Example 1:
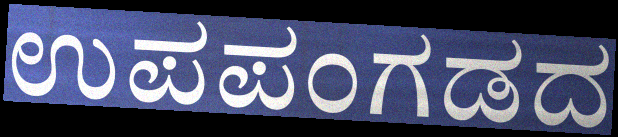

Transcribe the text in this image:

ಉಪಪಂಗಡದ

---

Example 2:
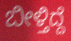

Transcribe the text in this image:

ಬೀಳ್ತಿದ್ದೆ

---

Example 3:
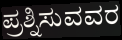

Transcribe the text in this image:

ಪ್ರಶ್ನಿಸುವವರ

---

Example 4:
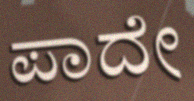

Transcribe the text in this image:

ಪಾದೇ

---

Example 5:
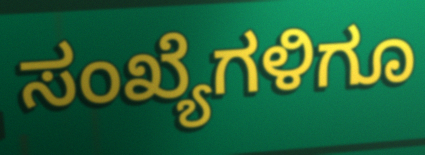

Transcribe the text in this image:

ಸಂಖ್ಯೆಗಳಿಗೂ